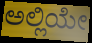
ಅಲ್ಲಿಯೇ